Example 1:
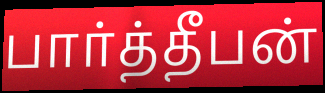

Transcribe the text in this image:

பார்த்தீபன்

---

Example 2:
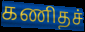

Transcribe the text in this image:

கணிதச்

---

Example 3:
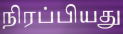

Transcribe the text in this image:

நிரப்பியது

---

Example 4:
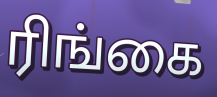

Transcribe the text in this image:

ரிங்கை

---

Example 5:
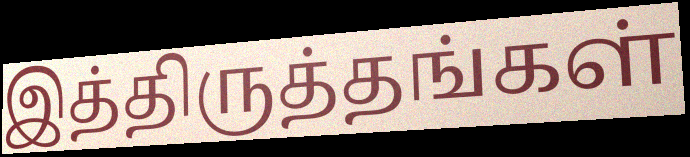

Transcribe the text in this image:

இத்திருத்தங்கள்